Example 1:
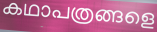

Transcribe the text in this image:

കഥാപത്രങ്ങളെ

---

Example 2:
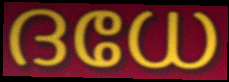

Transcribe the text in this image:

ദധേ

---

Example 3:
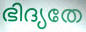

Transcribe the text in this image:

ഭിദ്യതേ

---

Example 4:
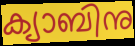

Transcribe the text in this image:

ക്യാബിനു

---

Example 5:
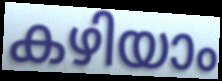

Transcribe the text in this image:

കഴിയാം